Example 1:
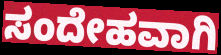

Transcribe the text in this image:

ಸಂದೇಹವಾಗಿ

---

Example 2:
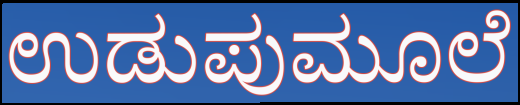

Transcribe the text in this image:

ಉಡುಪುಮೂಲೆ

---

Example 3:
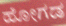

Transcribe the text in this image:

ಹೋಗಡ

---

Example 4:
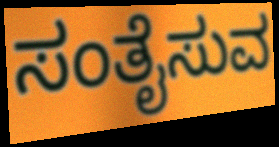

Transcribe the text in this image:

ಸಂತೈಸುವ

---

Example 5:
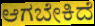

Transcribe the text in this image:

ಆಗಬೇಕಿದೆ